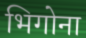
भिगोना